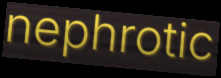
nephrotic